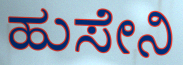
ಹುಸೇನಿ